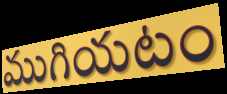
ముగియటం